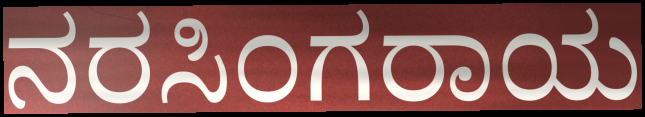
ನರಸಿಂಗರಾಯ